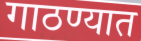
गाठण्यात